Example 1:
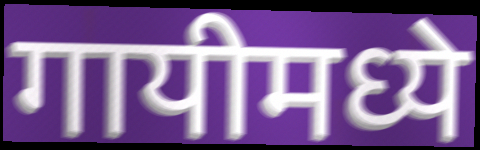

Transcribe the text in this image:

गायीमध्ये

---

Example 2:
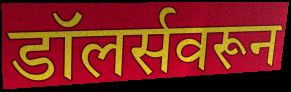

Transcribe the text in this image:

डॉलर्सवरून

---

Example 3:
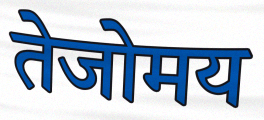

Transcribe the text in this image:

तेजोमय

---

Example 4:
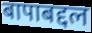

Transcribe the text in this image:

बापाबद्दल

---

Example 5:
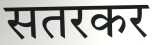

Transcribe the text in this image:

सतरकर